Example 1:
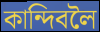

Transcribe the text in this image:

কান্দিবলৈ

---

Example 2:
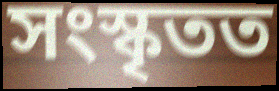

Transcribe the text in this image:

সংস্কৃতত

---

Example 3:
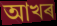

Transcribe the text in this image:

আখৰ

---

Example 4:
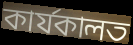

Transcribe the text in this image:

কাৰ্যকালত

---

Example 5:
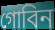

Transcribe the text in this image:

গোবিন